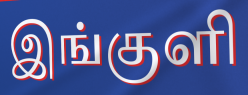
இங்குளி